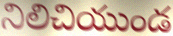
నిలిచియుండ